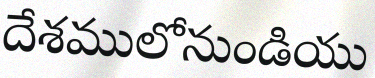
దేశములోనుండియు